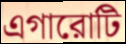
এগারোটি